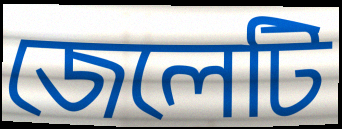
জেলেটি